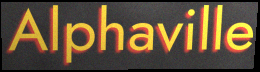
Alphaville